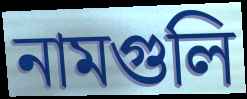
নামগুলি